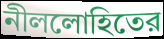
নীললোহিতের